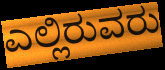
ಎಲ್ಲಿರುವರು